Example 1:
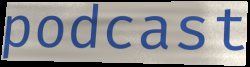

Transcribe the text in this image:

podcast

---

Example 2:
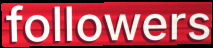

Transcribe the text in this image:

followers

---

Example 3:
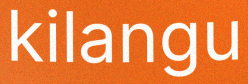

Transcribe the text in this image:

kilangu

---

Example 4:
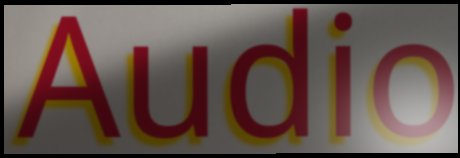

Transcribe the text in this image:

Audio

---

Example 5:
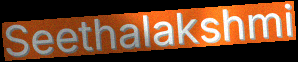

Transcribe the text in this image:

Seethalakshmi